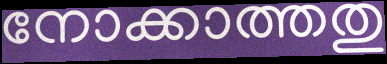
നോക്കാത്തതു